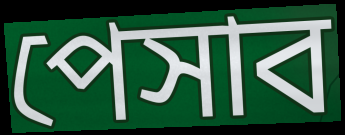
পেসাব